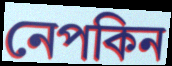
নেপকিন